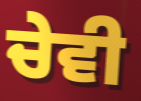
ਚੇਵੀ